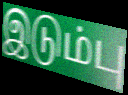
இடும்பு